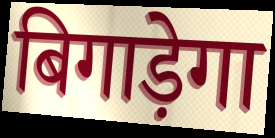
बिगाड़ेगा